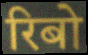
रिबो